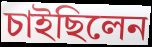
চাইছিলেন